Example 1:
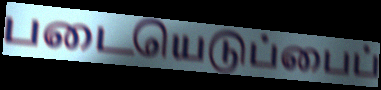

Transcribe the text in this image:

படையெடுப்பைப்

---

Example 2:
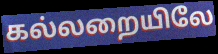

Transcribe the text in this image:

கல்லறையிலே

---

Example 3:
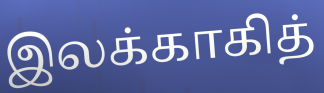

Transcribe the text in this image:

இலக்காகித்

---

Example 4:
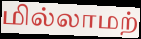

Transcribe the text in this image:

மில்லாமற்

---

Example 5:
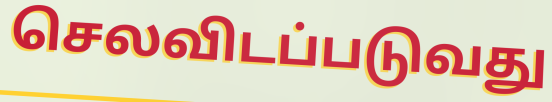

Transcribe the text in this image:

செலவிடப்படுவது